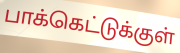
பாக்கெட்டுக்குள்